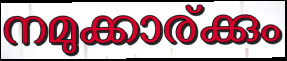
നമുക്കാര്ക്കും